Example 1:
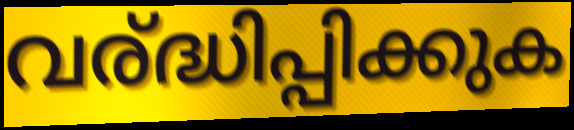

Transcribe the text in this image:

വര്ദ്ധിപ്പിക്കുക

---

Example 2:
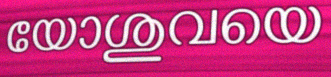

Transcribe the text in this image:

യോശുവയെ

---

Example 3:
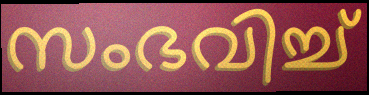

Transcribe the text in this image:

സംഭവിച്ച്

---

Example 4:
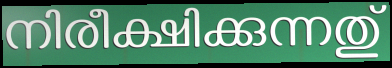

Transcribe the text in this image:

നിരീക്ഷിക്കുന്നതു്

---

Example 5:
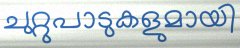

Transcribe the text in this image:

ചുറ്റുപാടുകളുമായി